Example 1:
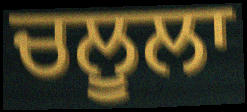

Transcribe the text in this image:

ਚਲੂਲਾ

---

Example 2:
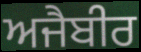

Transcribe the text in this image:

ਅਜੈਬੀਰ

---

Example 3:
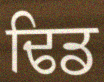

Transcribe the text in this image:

ਢਿਡ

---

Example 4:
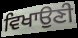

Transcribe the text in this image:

ਵਿਖਾਉਣੀ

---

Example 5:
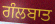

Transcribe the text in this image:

ਗੰਲਬਾਤ